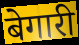
बेगारी